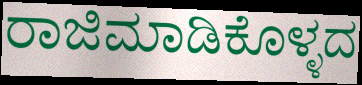
ರಾಜಿಮಾಡಿಕೊಳ್ಳದ